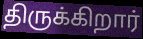
திருக்கிறார்